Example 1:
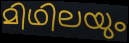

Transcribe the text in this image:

മിഥിലയും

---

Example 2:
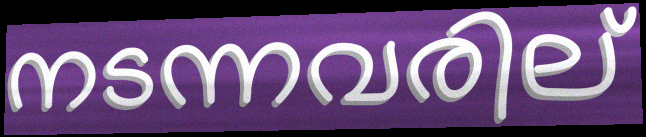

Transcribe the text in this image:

നടന്നവരില്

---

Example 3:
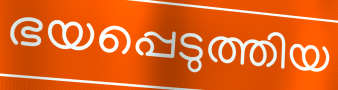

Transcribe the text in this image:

ഭയപ്പെടുത്തിയ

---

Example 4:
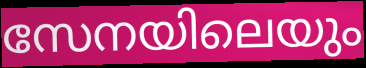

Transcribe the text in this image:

സേനയിലെയും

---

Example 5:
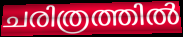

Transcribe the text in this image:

ചരിത്രത്തിൽ